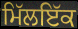
ਮਿੱਲਇੱਕ